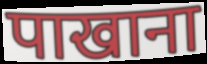
पाखाना